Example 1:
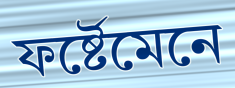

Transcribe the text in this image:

ফৰ্ষ্টেমেনে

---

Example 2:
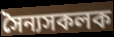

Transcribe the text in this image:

সৈন্যসকলক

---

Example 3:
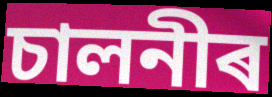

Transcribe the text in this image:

চালনীৰ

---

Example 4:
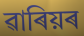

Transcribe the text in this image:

ৱাৰিয়ৰ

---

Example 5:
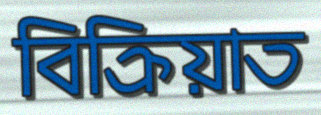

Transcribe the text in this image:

বিক্ৰিয়াত